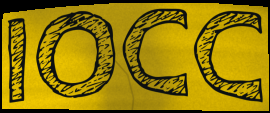
IOCC